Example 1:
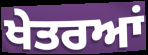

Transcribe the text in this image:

ਖੇਤਰਆਂ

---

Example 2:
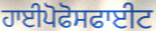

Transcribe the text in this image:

ਹਾਈਪੋਫੋਸਫਾਈਟ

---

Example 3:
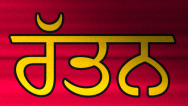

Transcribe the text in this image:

ਰੱਤਨ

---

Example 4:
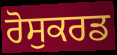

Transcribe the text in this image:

ਰੋਸੁਕਰਡ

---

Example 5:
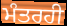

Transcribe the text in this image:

ਮੰਤਰਹੀ